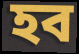
হব